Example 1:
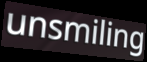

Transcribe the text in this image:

unsmiling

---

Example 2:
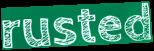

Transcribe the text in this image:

rusted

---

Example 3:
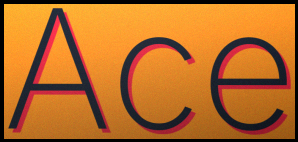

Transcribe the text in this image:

Ace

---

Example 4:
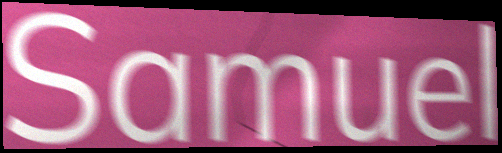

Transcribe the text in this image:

Samuel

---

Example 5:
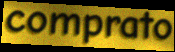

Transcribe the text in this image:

comprato